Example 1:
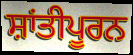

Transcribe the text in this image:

ਸ਼ਾਂਤੀਪੂਰਨ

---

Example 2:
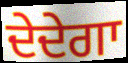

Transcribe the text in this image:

ਦੇਦੇਗਾ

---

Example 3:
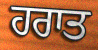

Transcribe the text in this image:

ਹਰਾਤ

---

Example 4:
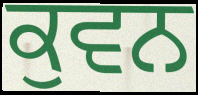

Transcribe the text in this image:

ਕੁਵਨ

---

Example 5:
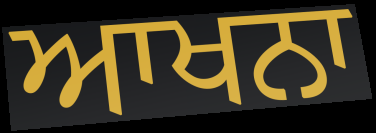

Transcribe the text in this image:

ਆਖਨਾ